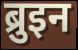
ब्रुइन